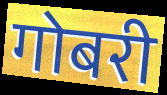
गोबरी